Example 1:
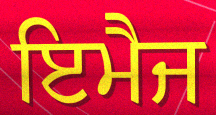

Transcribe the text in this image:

ਇਮੈਜ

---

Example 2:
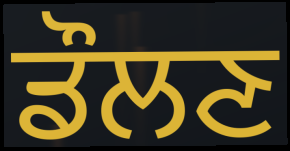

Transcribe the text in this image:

ਡੌਲਣ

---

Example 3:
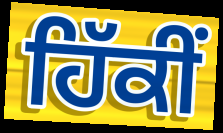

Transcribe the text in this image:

ਹਿੱਕੀਂ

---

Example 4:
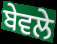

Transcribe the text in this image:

ਬੇਵਲੇ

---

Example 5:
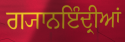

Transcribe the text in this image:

ਗ੍ਯਾਨਇੰਦ੍ਰੀਆਂ